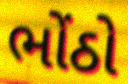
ભોંઠો